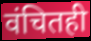
वंचितही